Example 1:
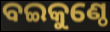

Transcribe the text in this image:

ବଇକୁଣ୍ଠେ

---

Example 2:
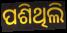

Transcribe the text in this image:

ପଶିଥିଲି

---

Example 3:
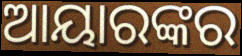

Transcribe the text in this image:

ଆୟାରଙ୍କର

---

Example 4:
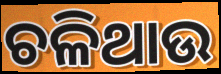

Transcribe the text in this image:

ଚଳିଥାଉ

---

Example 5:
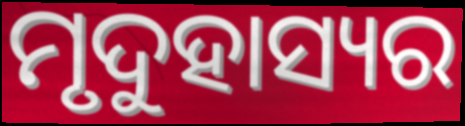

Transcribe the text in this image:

ମୃଦୁହାସ୍ୟର